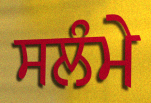
ਸਲੰਮੇ